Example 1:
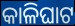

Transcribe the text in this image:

କାଳିଘାଟ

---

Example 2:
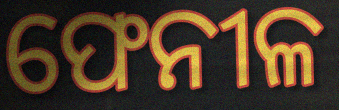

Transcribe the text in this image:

ଫେନୀଳ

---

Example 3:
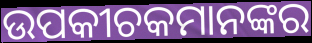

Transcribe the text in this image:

ଉପକୀଚକମାନଙ୍କର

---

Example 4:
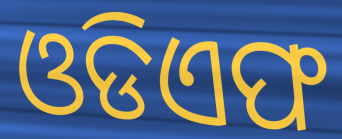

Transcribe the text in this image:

ଓଡିଏଫ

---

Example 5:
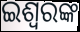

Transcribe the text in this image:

ଇଶ୍ୱରଙ୍କ